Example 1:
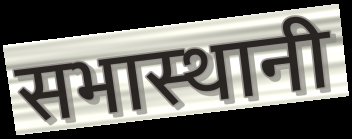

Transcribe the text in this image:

सभास्थानी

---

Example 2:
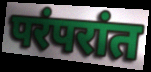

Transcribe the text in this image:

परंपरांत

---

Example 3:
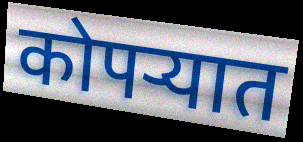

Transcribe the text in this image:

कोपर्‍यात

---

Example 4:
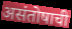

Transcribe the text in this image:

असंतोषाची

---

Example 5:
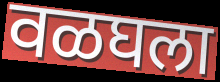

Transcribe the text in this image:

वळघला